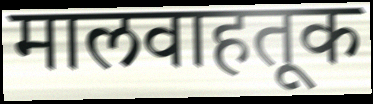
मालवाहतूक